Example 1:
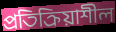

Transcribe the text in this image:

প্ৰতিক্ৰিয়াশীল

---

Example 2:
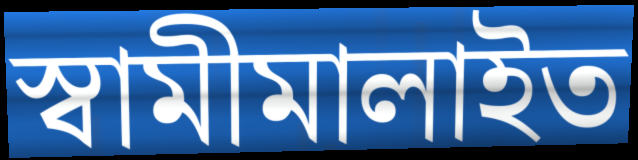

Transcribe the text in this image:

স্বামীমালাইত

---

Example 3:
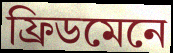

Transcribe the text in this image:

ফ্ৰিডমেনে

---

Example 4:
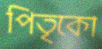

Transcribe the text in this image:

পিতৃকো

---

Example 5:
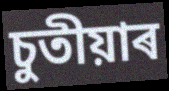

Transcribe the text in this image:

চুতীয়াৰ